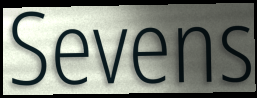
Sevens